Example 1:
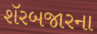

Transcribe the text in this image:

શૅરબજારના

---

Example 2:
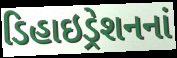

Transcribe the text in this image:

ડિહાઇડ્રેશનનાં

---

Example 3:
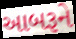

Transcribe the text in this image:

આબરૂને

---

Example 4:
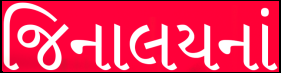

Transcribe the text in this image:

જિનાલયનાં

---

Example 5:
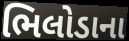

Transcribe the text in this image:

ભિલોડાના